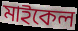
মাইকেল